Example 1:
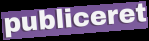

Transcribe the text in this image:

publiceret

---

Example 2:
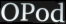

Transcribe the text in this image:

OPod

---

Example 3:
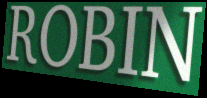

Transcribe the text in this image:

ROBIN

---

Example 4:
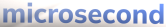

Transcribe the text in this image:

microsecond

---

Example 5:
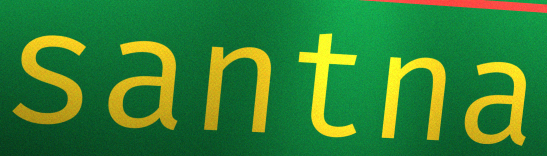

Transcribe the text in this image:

santna